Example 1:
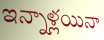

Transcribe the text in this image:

ఇన్నాళ్లయినా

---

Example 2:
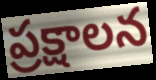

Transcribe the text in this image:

ప్రక్షాలన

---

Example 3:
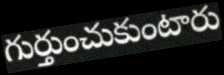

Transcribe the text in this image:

గుర్తుంచుకుంటారు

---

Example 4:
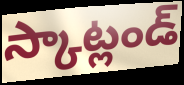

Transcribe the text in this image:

స్కాట్లండ్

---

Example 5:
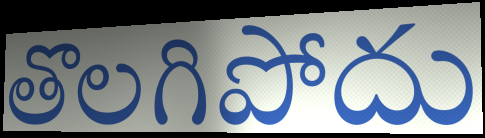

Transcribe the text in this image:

తొలగిపోదు